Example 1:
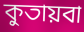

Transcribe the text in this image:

কুতায়বা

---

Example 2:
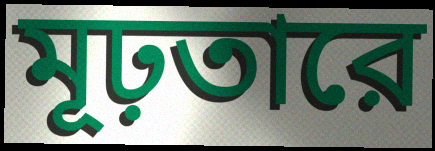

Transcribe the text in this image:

মূঢ়তারে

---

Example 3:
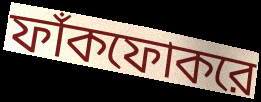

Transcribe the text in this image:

ফাঁকফোকরে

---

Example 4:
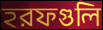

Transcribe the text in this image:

হরফগুলি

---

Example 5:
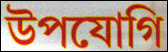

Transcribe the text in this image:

উপযোগি